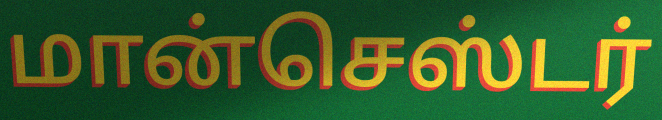
மான்செஸ்டர்